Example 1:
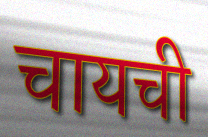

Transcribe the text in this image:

चायची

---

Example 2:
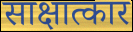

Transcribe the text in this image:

साक्षात्कार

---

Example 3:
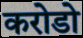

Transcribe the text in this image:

करोडो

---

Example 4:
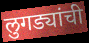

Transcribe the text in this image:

लुगड्यांची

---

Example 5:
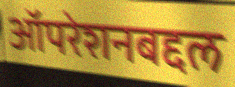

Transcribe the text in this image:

ऑपरेशनबद्दल